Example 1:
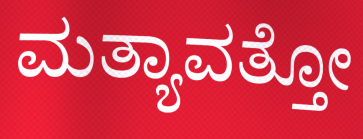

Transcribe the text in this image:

ಮತ್ಯಾವತ್ತೋ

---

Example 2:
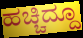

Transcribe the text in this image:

ಹಚ್ಚಿದ್ದೂ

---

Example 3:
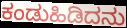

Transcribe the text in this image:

ಕಂಡುಹಿಡಿದನು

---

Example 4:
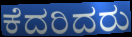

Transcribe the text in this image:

ಕೆದರಿದರು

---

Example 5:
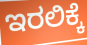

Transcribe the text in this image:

ಇರಲಿಕ್ಕೆ